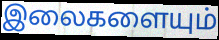
இலைகளையும்